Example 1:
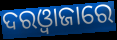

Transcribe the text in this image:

ଦରଓ୍ୱାଜାରେ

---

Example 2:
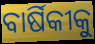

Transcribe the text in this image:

ବାର୍ଷିକୀକୁ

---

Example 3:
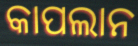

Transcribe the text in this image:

କାପଲାନ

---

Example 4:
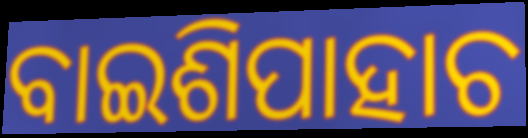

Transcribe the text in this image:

ବାଇଶିପାହାଚ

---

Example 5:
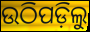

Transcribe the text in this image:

ଉଠିପଡ଼ିଲୁ